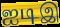
ஐடிஇ